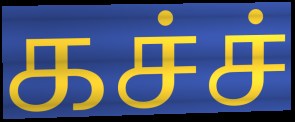
கச்ச்